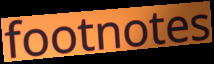
footnotes